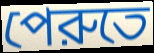
পেরুতে